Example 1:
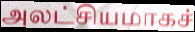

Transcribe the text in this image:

அலட்சியமாகச்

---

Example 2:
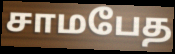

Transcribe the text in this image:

சாமபேத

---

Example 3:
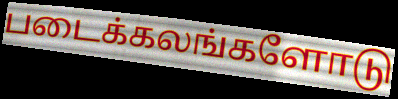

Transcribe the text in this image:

படைக்கலங்களோடு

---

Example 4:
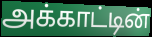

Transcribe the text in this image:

அக்காட்டின்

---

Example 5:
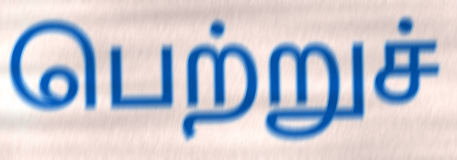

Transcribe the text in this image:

பெற்றுச்